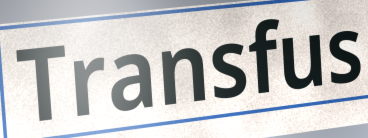
Transfus